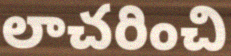
లాచరించి